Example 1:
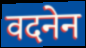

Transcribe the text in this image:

वदनेन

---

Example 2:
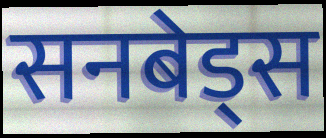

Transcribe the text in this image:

सनबेड्स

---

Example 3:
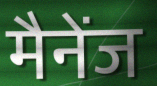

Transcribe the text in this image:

मैनेंज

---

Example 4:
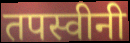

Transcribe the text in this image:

तपस्वीनी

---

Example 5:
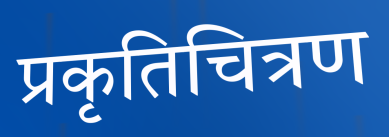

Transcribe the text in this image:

प्रकृतिचित्रण